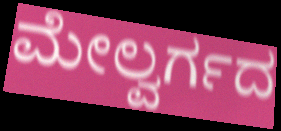
ಮೇಲ್ವರ್ಗದ